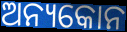
ଅନ୍ୟକୋନ